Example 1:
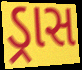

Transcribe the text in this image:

ડ્રાસ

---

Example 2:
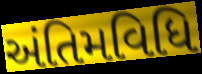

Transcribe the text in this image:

અંતિમવિધિ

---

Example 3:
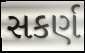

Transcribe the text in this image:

સકર્ણ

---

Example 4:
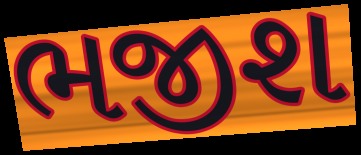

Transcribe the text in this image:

ભજીશ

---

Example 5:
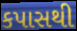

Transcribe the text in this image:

કપાસથી